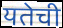
यतेची